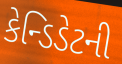
કેન્ડિડેટની